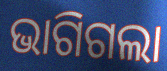
ଭାଗିଗଲା